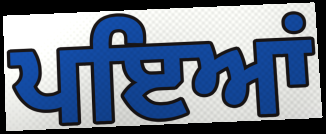
ਪਇਆਂ